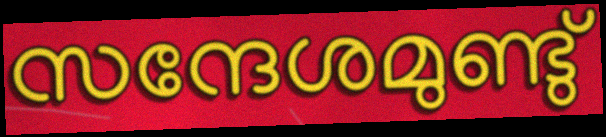
സന്ദേശമുണ്ടു്